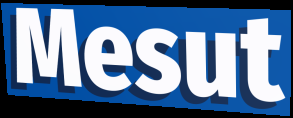
Mesut